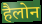
हैलोन